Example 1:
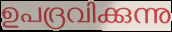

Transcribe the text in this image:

ഉപദ്രവിക്കുന്നു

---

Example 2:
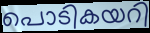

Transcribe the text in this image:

പൊടികയറി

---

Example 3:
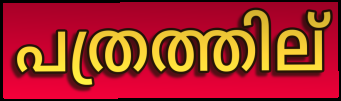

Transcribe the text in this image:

പത്രത്തില്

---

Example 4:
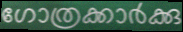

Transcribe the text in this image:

ഗോത്രക്കാർക്കു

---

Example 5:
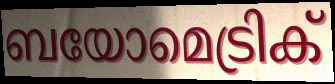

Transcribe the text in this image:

ബയോമെട്രിക്